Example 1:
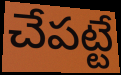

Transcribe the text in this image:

చేపట్టే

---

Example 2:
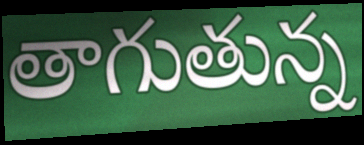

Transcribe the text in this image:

తాగుతున్న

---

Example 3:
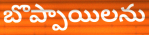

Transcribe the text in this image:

బొప్పాయిలను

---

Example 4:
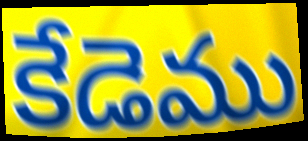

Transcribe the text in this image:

కేడెము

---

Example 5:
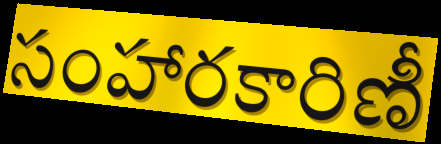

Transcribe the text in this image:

సంహారకారిణీ